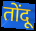
तोंदू